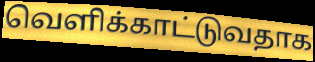
வெளிக்காட்டுவதாக